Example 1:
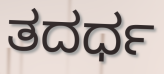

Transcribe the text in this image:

ತದರ್ಧ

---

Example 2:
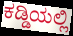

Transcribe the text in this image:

ಕಡ್ಡಿಯಲ್ಲಿ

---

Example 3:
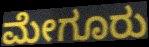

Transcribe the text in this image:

ಮೇಗೂರು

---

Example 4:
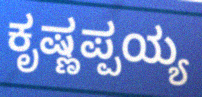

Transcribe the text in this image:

ಕೃಷ್ಣಪ್ಪಯ್ಯ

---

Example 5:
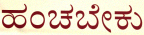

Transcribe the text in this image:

ಹಂಚಬೇಕು